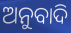
ଅନୁବାଦି